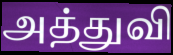
அத்துவி